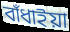
বাঁধাইয়া